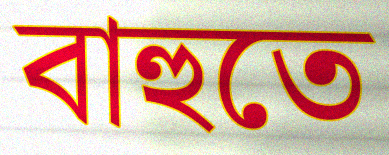
বাহুতে